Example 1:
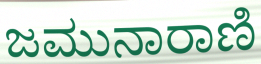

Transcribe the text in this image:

ಜಮುನಾರಾಣಿ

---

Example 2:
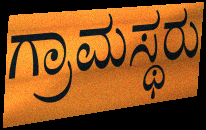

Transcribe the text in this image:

ಗ್ರಾಮಸ್ಥರು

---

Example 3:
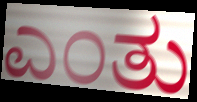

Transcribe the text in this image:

ಎಂತು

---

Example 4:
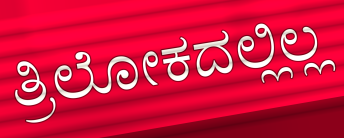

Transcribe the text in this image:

ತ್ರಿಲೋಕದಲ್ಲಿಲ್ಲ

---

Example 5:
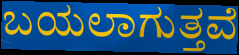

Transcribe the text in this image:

ಬಯಲಾಗುತ್ತವೆ